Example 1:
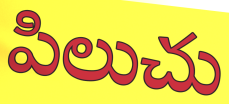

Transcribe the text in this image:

పిలుచు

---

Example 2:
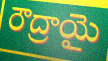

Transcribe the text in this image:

రౌద్రాయై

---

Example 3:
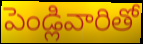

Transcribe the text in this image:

పెండ్లివారితో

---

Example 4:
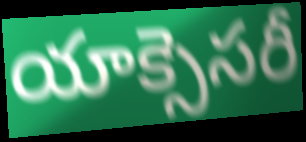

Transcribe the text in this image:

యాక్సెసరీ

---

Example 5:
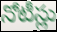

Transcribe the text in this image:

నోటీస్లు